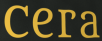
cera